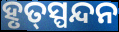
ହୃତ୍‌ସ୍ପନ୍ଦନ